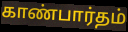
காண்பார்தம்